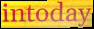
intoday